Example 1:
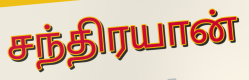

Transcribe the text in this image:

சந்திரயான்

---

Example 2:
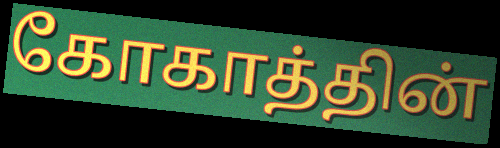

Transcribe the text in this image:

கோகாத்தின்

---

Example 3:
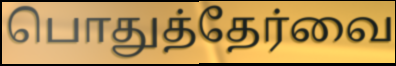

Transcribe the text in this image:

பொதுத்தேர்வை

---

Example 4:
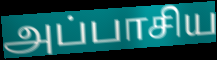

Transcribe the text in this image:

அப்பாசிய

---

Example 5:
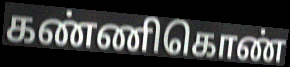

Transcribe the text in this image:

கண்ணிகொண்